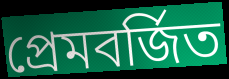
প্রেমবর্জিত